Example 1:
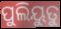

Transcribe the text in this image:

ପୁଲିୟୁତୁ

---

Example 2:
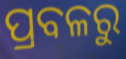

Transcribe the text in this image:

ପ୍ରବଳରୁ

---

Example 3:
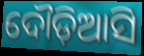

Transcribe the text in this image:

ଦୌଡ଼ିଆସି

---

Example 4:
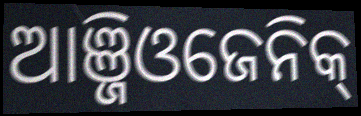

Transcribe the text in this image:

ଆଞ୍ଜିଓଜେନିକ୍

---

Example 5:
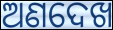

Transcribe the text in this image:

ଅଣଦେଖ